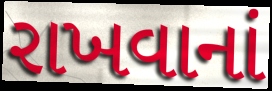
રાખવાનાં